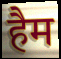
हैम